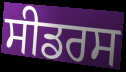
ਸੀਡਰਸ